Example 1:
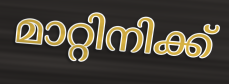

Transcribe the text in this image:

മാറ്റിനിക്ക്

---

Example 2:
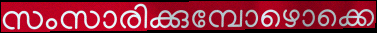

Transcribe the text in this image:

സംസാരിക്കുമ്പോഴൊക്കെ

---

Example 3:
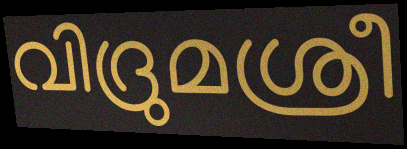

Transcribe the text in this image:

വിദ്രുമശ്രീ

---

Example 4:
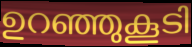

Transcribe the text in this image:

ഉറഞ്ഞുകൂടി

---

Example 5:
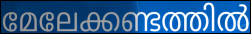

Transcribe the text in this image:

മേലേക്കണ്ടത്തിൽ